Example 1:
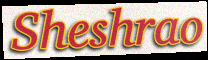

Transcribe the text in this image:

Sheshrao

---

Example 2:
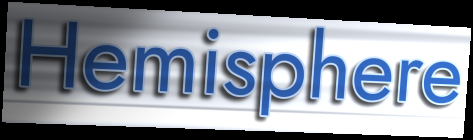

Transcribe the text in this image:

Hemisphere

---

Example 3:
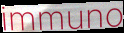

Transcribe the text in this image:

immuno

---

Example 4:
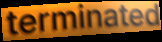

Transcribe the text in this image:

terminated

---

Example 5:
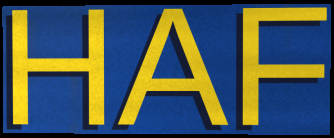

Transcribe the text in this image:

HAF